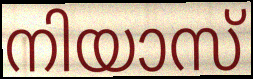
നിയാസ്